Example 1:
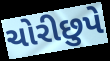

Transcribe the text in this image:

ચોરીછુપે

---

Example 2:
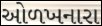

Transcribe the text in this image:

ઓળખનારા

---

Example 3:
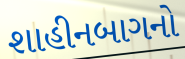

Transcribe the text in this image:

શાહીનબાગનો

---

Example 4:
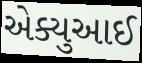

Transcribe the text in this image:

એક્યુઆઈ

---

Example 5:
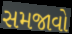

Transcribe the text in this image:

સમજાવો